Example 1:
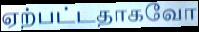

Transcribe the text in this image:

ஏற்பட்டதாகவோ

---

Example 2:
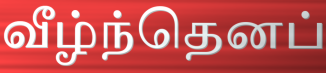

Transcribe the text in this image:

வீழ்ந்தெனப்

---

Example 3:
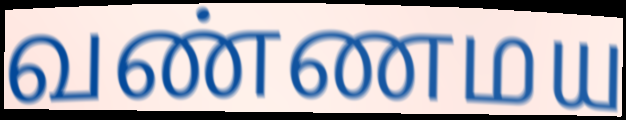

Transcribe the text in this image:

வண்ணமய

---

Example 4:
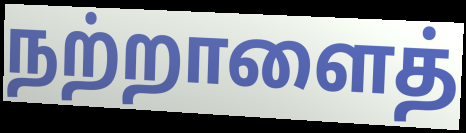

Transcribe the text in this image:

நற்றாளைத்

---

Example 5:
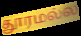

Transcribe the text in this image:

தூரமல்ல